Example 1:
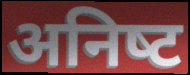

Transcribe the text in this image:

अनिष्‍ट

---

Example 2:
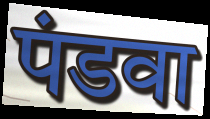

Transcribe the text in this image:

पंडवा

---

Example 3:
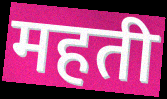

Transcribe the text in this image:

महती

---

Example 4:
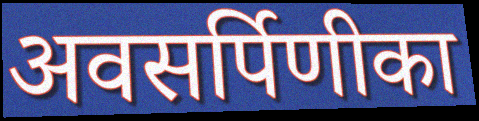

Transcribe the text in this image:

अवसर्पिणीका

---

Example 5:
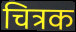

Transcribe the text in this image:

चित्रक